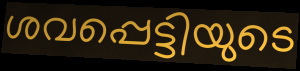
ശവപ്പെട്ടിയുടെ